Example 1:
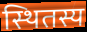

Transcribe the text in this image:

स्थितस्य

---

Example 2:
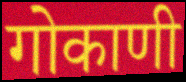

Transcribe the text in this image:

गोकाणी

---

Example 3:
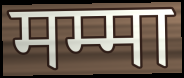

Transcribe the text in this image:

मम्मा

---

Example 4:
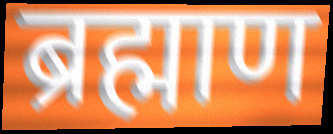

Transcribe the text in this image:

ब्रह्माण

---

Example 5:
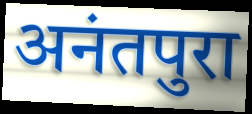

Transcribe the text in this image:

अनंतपुरा